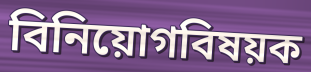
বিনিয়োগবিষয়ক